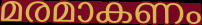
മരമാകണം